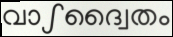
വാഽദ്വൈതം